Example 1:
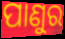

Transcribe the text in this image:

ପାଣୁର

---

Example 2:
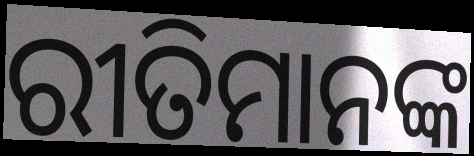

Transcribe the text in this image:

ରୀତିମାନଙ୍କ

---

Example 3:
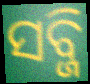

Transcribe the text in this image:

ସବ୍ଜି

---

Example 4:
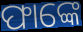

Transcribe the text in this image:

ଫାଙ୍କେ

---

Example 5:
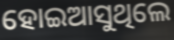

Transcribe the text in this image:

ହୋଇଆସୁଥିଲେ